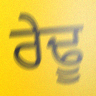
ਰੇਢੂ